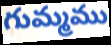
గుమ్మము